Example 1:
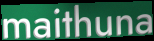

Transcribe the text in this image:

maithuna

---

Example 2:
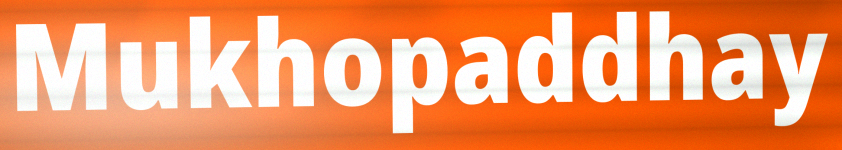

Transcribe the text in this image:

Mukhopaddhay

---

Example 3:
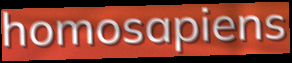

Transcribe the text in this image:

homosapiens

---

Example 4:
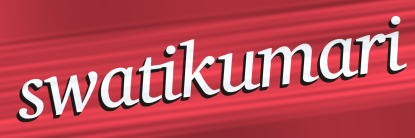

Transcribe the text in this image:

swatikumari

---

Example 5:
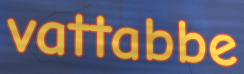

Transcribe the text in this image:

vattabbe